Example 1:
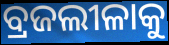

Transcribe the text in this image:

ବ୍ରଜଲୀଳାକୁ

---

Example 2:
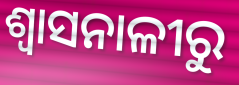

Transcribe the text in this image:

ଶ୍ୱାସନାଳୀରୁ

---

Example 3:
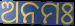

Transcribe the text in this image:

ଅନମଃ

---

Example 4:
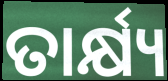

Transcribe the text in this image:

ତାର୍କ୍ଷ୍ୟ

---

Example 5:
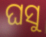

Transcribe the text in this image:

ଘସୁ